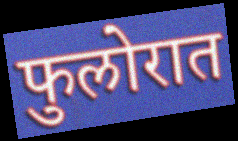
फुलोरात